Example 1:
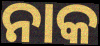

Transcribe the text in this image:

ନାକ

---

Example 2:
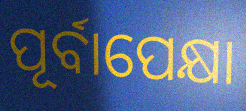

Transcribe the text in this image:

ପୂର୍ବାପେକ୍ଷା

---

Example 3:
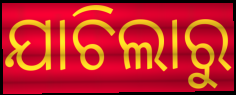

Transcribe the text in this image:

ଯାଚିଲାରୁ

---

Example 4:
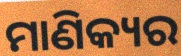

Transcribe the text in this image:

ମାଣିକ୍ୟର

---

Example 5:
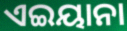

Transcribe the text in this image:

ଏଇୟାନା